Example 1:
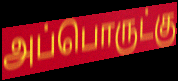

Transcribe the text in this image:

அப்பொருட்கு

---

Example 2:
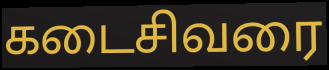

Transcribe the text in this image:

கடைசிவரை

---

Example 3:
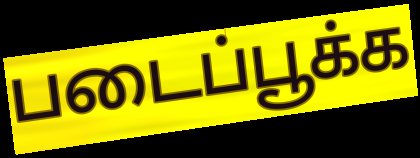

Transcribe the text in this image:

படைப்பூக்க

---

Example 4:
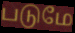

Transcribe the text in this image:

படுமே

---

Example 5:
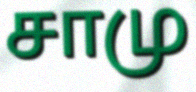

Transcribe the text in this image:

சாமு